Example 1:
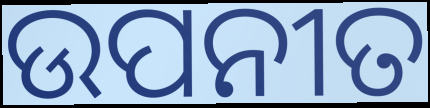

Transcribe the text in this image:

ଉପନୀତ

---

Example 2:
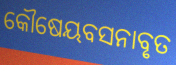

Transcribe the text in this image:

କୌଷେୟବସନାବୃତ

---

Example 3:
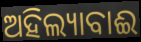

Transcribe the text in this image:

ଅହିଲ୍ୟାବାଈ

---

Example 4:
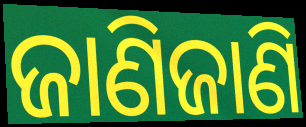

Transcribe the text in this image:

ଜାଣିଜାଣି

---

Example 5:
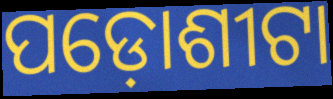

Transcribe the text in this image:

ପଡ଼ୋଶୀଟା